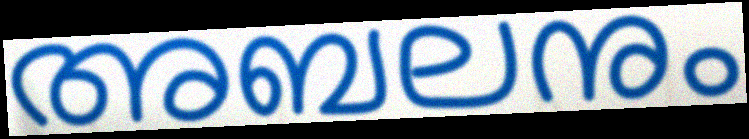
അബലനും